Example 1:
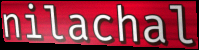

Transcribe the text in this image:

nilachal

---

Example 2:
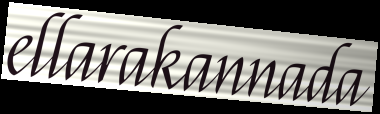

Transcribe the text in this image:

ellarakannada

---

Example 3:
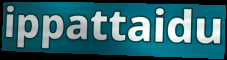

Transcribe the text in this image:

ippattaidu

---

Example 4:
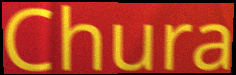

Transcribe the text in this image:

Chura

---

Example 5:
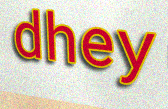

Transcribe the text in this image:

dhey